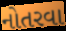
નોતરવા